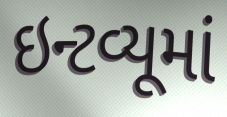
ઇન્ટવ્યૂમાં